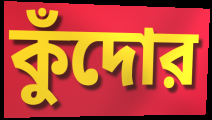
কুঁদোর